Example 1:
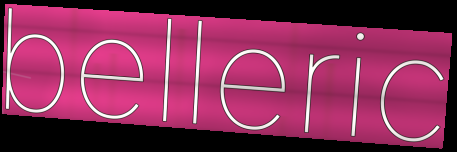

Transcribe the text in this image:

belleric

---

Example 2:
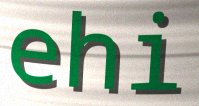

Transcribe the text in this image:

ehi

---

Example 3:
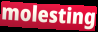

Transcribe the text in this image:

molesting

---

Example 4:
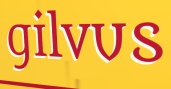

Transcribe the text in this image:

gilvus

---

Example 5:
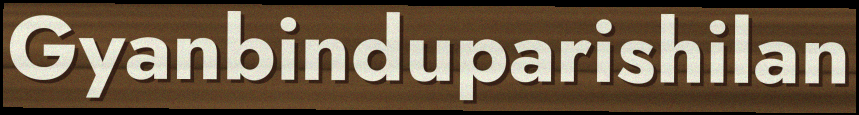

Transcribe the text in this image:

Gyanbinduparishilan